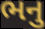
ભનુ